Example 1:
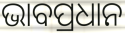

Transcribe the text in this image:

ଭାବପ୍ରଧାନ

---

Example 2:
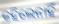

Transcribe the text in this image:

କହିଲେନାହିଁ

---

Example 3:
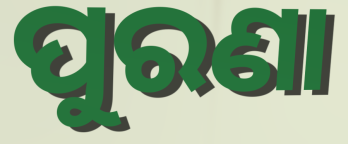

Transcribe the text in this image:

ପୁରଣା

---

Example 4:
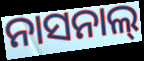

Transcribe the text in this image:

ନାସନାଲ୍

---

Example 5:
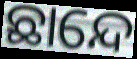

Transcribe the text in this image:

ଛାନ୍ଦେ